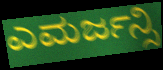
ಎಮರ್ಜನ್ಸಿ